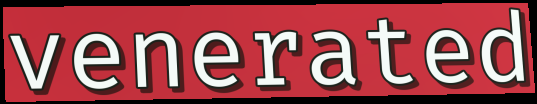
venerated